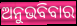
ଅନୁଭବିବାର